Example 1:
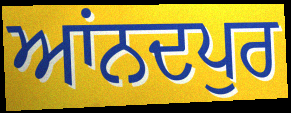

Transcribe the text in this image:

ਆਂਨਦਪੁਰ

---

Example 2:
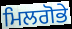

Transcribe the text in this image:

ਮਿਲਗੋਭੇ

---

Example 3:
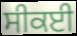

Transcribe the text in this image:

ਸੀਕਈ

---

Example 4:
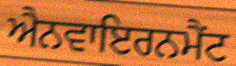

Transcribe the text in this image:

ਐਨਵਾਇਰਨਮੈਂਟ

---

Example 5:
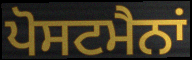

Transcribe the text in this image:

ਪੋਸਟਮੈਨਾਂ